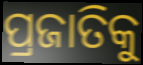
ପ୍ରଜାତିକୁ